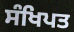
ਸੰਖਿਪਤ